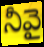
నీవై